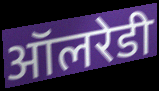
ऑलरेडी